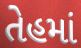
તેહમાં